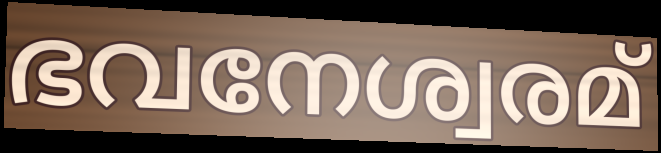
ഭവനേശ്വരമ്